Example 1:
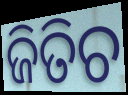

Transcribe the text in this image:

ଜିତିଚ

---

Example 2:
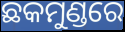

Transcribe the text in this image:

ଛକମୁଣ୍ଡରେ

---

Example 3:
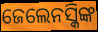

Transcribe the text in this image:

ଜେଲେନସ୍କିଙ୍କ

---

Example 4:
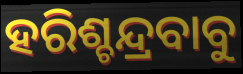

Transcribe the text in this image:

ହରିଶ୍ଚନ୍ଦ୍ରବାବୁ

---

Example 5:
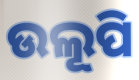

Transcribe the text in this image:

ଉଲୂପି